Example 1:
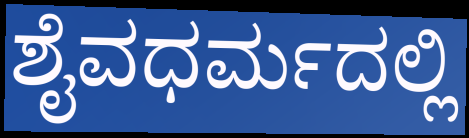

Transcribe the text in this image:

ಶೈವಧರ್ಮದಲ್ಲಿ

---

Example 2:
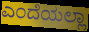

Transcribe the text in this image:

ಎಂದೆಯಲ್ಲಾ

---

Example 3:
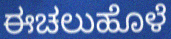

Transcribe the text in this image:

ಈಚಲುಹೊಳೆ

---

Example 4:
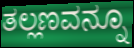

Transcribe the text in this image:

ತಲ್ಲಣವನ್ನೂ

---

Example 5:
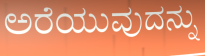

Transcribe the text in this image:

ಅರೆಯುವುದನ್ನು